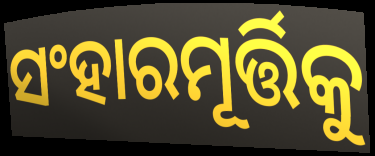
ସଂହାରମୂର୍ତ୍ତିକୁ